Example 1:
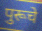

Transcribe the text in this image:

पुरूचे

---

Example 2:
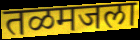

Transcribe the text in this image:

तळमजला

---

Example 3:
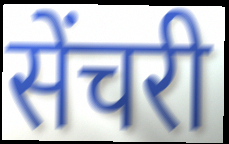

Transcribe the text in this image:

सेंचरी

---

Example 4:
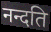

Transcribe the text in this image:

नन्दति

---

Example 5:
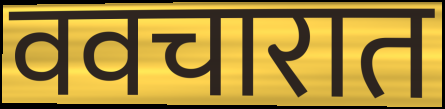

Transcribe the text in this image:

ववचारात